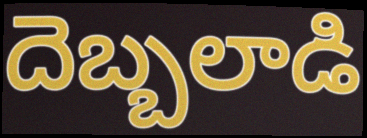
దెబ్బలాడి